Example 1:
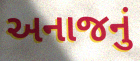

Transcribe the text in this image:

અનાજનું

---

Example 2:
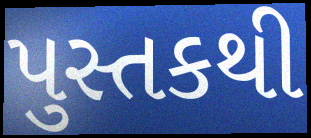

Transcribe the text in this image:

પુસ્તકથી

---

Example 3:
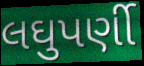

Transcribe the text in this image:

લઘુપર્ણી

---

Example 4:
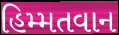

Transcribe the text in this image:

હિમ્મતવાન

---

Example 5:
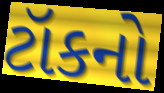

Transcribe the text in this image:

ટૉકનો